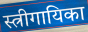
स्त्रीगायिका